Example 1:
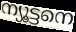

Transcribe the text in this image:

ന്യൂട്ടനെ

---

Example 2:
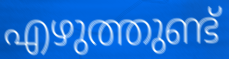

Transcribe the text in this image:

എഴുത്തുണ്ട്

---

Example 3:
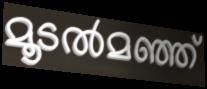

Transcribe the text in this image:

മൂടൽമഞ്ഞ്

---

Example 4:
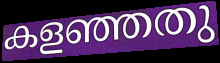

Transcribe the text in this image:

കളഞ്ഞതു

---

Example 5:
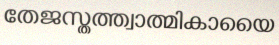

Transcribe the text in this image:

തേജസ്തത്ത്വാത്മികായൈ